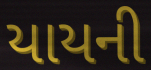
યાયની